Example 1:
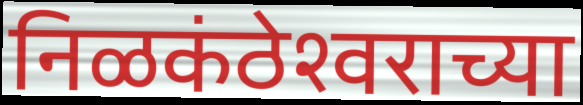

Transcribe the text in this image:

निळकंठेश्वराच्या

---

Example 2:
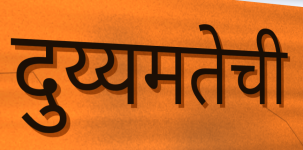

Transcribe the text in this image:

दुय्यमतेची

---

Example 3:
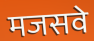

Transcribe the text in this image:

मजसवे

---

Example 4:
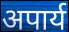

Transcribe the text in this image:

अपार्य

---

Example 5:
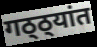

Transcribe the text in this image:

गठ्ठ्यांत